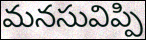
మనసువిప్పి